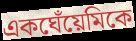
একঘেঁয়েমিকে